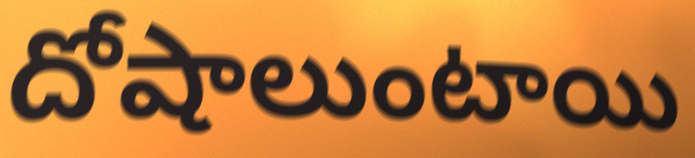
దోషాలుంటాయి